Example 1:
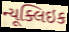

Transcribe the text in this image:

ન્યૂક્લિઇક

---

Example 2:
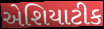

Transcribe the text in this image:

એશિયાટીક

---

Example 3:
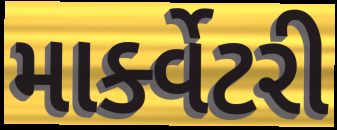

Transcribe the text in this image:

માર્ક્વેટરી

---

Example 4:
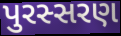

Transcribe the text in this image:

પુરસ્સરણ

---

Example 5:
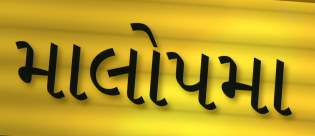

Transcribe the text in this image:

માલોપમા